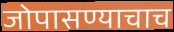
जोपासण्याचाच